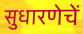
सुधारणेचें